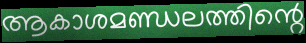
ആകാശമണ്ഡലത്തിന്റെ